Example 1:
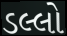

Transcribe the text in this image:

ડલ્લો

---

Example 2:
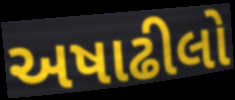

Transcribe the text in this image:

અષાઢીલો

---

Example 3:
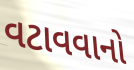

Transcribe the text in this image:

વટાવવાનો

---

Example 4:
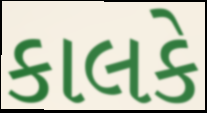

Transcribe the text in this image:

કાલકે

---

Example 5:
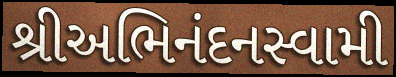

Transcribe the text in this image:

શ્રીઅભિનંદનસ્વામી